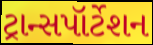
ટ્રાન્સપૉર્ટેશન